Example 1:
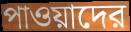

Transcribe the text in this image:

পাওয়াদের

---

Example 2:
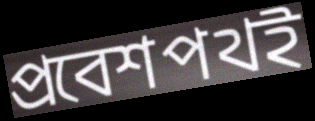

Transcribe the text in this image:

প্রবেশপথই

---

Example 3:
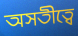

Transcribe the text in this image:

অসতীত্বে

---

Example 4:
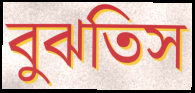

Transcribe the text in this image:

বুঝতিস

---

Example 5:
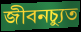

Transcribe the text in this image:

জীবনচ্যুত